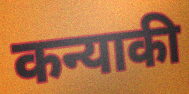
कन्याकी